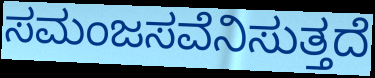
ಸಮಂಜಸವೆನಿಸುತ್ತದೆ